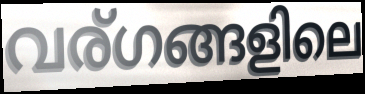
വര്ഗങ്ങളിലെ